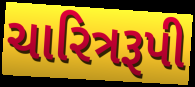
ચારિત્રરૂપી